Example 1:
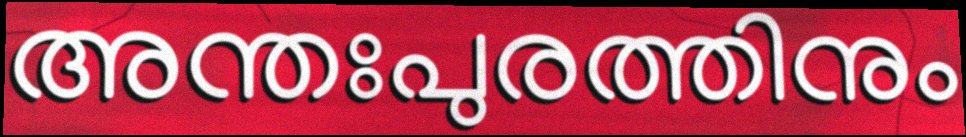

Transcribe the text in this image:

അന്തഃപുരത്തിനും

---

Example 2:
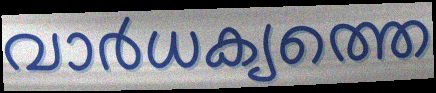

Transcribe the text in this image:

വാർധക്യത്തെ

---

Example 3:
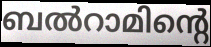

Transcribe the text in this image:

ബൽറാമിന്റെ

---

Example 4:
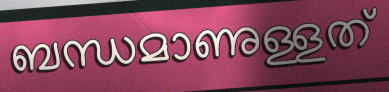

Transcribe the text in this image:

ബന്ധമാണുള്ളത്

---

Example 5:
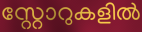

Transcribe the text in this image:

സ്റ്റോറുകളിൽ